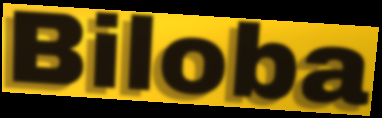
Biloba